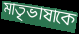
মাতৃভাষাকে